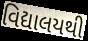
વિદ્યાલયથી